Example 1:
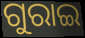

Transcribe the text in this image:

ଗୁରାଇ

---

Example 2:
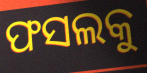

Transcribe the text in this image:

ଫସଲକୁ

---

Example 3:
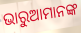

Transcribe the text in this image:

ଭାରୁଆମାନଙ୍କ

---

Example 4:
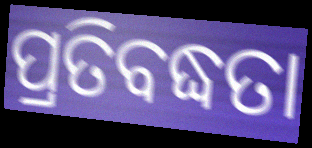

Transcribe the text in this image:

ପ୍ରତିବଦ୍ଧତା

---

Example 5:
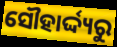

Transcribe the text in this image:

ସୌହାର୍ଦ୍ଦ୍ୟରୁ